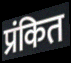
प्रंकित